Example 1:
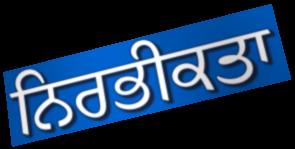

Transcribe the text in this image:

ਨਿਰਭੀਕਤਾ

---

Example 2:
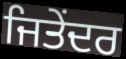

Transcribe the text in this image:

ਜਿਤੇਂਦਰ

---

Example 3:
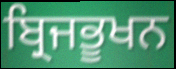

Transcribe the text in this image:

ਬ੍ਰਿਜਭੂਖਨ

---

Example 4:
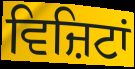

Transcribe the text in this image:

ਵਿਜ਼ਿਟਾਂ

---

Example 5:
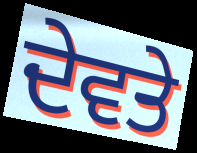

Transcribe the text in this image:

ਦੇਵਤੇ